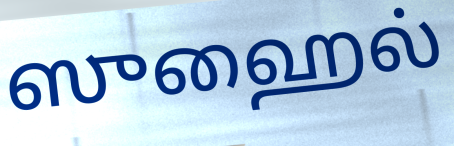
ஸுஹைல்